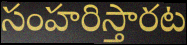
సంహరిస్తారట